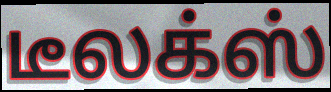
டீலக்ஸ்